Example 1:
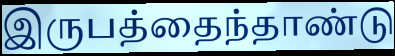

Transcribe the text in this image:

இருபத்தைந்தாண்டு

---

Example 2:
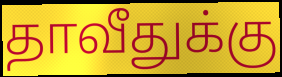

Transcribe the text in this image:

தாவீதுக்கு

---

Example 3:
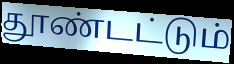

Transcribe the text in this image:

தூண்டட்டும்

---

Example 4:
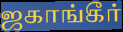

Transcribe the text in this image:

ஜகாங்கீர்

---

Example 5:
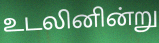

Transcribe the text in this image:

உடலினின்று